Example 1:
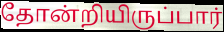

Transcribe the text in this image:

தோன்றியிருப்பார்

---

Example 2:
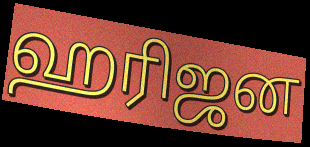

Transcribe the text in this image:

ஹரிஜன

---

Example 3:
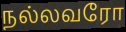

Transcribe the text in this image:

நல்லவரோ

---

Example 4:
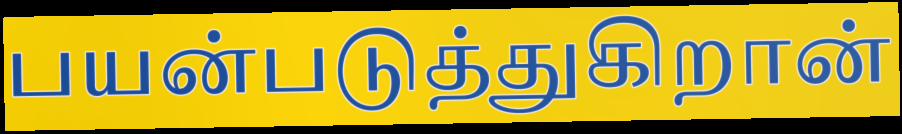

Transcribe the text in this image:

பயன்படுத்துகிறான்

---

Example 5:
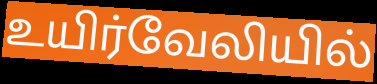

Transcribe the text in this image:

உயிர்வேலியில்